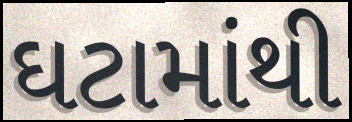
ઘટામાંથી